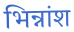
भिन्नांश